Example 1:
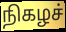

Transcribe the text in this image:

நிகழச்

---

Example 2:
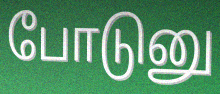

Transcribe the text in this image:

போடுனு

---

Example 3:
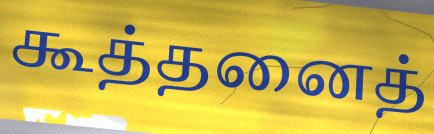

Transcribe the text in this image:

கூத்தனைத்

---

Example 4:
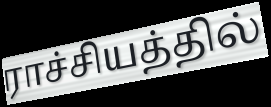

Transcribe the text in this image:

ராச்சியத்தில்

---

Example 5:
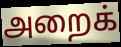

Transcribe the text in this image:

அறைக்